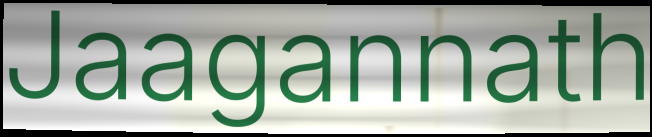
Jaagannath